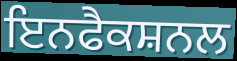
ਇਨਫੈਕਸ਼ਨਲ